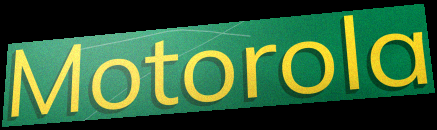
Motorola